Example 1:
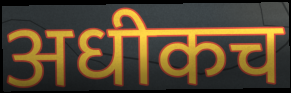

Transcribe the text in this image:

अधीकच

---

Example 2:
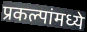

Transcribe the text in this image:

प्रकल्पांमध्ये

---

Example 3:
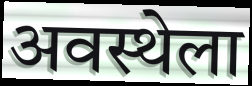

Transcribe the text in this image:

अवस्थेला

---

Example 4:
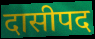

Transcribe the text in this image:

दासीपद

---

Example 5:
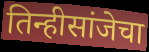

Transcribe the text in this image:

तिन्हीसांजेचा